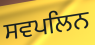
ਸਵਪਲਿਨ